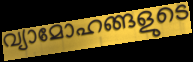
വ്യാമോഹങ്ങളുടെ